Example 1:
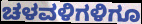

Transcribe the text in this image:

ಚಳವಳಿಗಳಿಗೂ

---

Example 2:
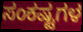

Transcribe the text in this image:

ಸಂಕಷ್ಟಗಳ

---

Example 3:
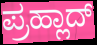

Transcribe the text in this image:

ಪ್ರಹ್ಲಾದ್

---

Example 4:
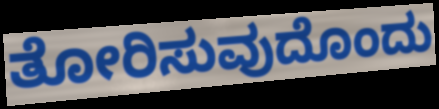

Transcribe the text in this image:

ತೋರಿಸುವುದೊಂದು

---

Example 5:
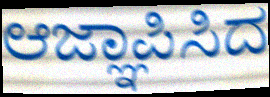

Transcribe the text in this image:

ಆಜ್ಞಾಪಿಸಿದ